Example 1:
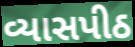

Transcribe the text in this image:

વ્યાસપીઠ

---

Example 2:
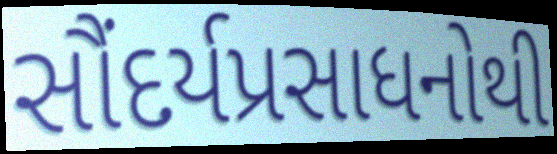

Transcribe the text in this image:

સૌંદર્યપ્રસાધનોથી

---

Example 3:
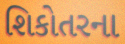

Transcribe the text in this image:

શિકોતરના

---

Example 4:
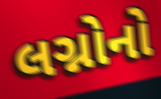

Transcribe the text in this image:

લગ્નોનો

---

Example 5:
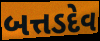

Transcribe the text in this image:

બત્તડદેવ